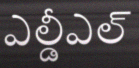
ఎల్డీఎల్